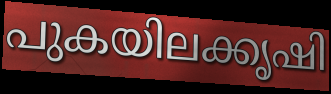
പുകയിലക്കൃഷി